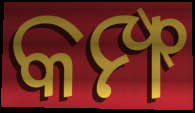
କମ୍ଫ